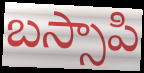
బస్సాపి